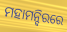
ମହାମନ୍ଦିରରେ